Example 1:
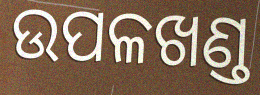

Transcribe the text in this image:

ଉପଳଖଣ୍ଡ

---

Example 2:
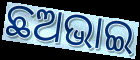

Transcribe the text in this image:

ଛଅଭାଇ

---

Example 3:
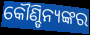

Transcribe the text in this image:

କୌଣ୍ଡିନ୍ୟଙ୍କର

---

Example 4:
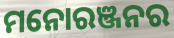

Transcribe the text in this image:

ମନୋରଞ୍ଜନର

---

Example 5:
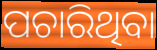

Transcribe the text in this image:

ପଚାରିଥିବା